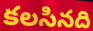
కలసినది